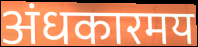
अंधकारमय